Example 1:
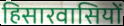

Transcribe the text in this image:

हिसारवासियों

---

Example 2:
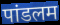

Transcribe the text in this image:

पांडलम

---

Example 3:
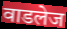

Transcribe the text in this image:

वाडलेज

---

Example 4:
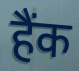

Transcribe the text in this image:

हैंक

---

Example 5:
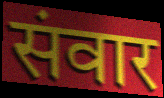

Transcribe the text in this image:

संवार